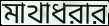
মাথাধরার